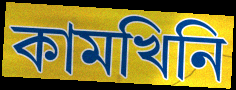
কামখিনি